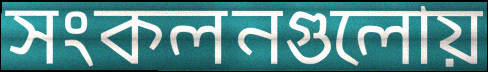
সংকলনগুলোয়